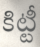
కిట్టీ